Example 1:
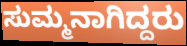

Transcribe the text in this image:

ಸುಮ್ಮನಾಗಿದ್ದರು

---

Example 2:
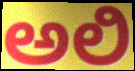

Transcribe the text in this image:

ಅಲಿ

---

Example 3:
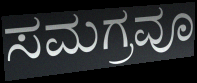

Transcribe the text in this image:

ಸಮಗ್ರವೂ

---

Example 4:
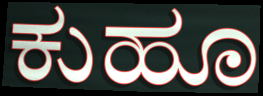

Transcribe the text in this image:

ಕುಹೂ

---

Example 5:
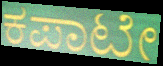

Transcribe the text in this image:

ಕಪಾಟೇ